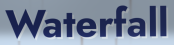
Waterfall